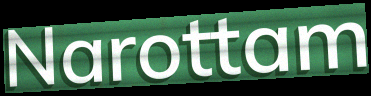
Narottam